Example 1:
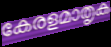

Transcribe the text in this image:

കേരളമാതൃക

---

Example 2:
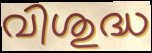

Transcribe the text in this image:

വിശുദ്ധ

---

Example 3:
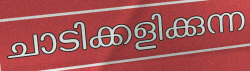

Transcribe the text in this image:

ചാടിക്കളിക്കുന്ന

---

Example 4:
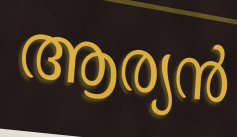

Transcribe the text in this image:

ആര്യൻ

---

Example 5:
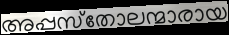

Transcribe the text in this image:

അപ്പസ്‌തോലന്മാരായ